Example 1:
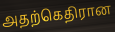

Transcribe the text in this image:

அதற்கெதிரான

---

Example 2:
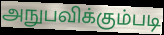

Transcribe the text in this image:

அநுபவிக்கும்படி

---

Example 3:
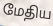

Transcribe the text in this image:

மேதிய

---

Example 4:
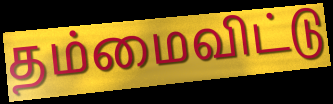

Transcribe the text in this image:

தம்மைவிட்டு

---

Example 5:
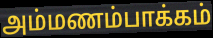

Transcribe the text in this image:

அம்மணம்பாக்கம்